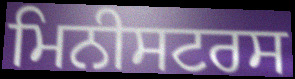
ਮਿਨੀਸਟਰਸ